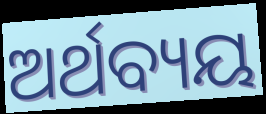
ଅର୍ଥବ୍ୟୟ